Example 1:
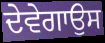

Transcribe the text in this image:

ਦੇਵੇਗਾਉਸ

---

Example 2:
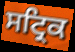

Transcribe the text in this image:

ਸਟ੍ਰਿਕ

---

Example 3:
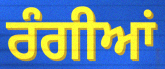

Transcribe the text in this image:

ਰੰਗੀਆਂ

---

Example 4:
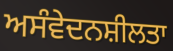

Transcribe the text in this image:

ਅਸੰਵੇਦਨਸ਼ੀਲਤਾ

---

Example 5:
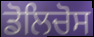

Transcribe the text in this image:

ਡੋਲਿਚੋਸ